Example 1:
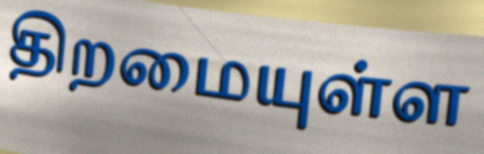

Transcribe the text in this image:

திறமையுள்ள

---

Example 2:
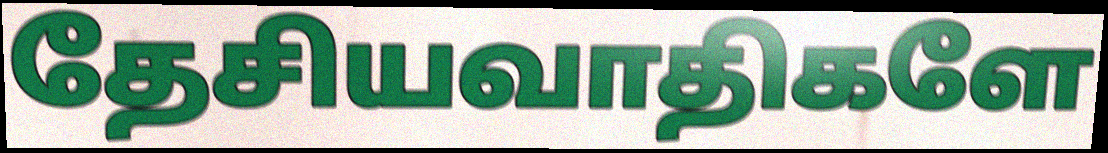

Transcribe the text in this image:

தேசியவாதிகளே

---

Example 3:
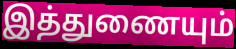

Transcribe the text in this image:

இத்துணையும்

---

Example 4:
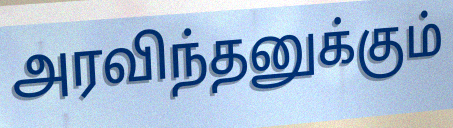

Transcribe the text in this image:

அரவிந்தனுக்கும்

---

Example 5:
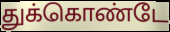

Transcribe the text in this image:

துக்கொண்டே